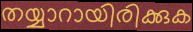
തയ്യാറായിരിക്കുക